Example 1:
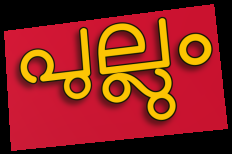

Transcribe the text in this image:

പുല്ലും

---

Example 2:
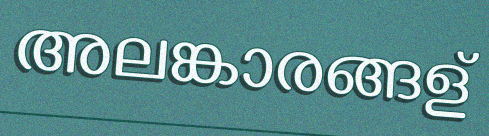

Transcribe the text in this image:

അലങ്കാരങ്ങള്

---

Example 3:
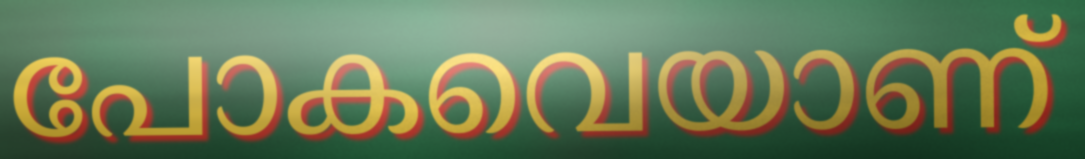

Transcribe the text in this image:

പോകവെയാണ്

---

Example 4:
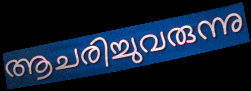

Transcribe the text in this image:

ആചരിച്ചുവരുന്നു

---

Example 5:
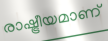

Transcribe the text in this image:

രാഷ്ട്രീയമാണ്